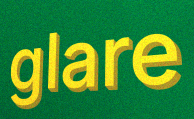
glare